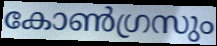
കോൺഗ്രസും